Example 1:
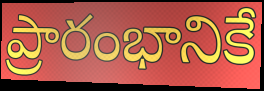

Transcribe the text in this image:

ప్రారంభానికే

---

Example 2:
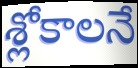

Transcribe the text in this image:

శ్లోకాలనే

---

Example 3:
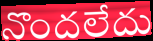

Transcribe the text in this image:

నొందలేదు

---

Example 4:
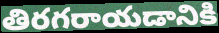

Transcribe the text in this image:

తిరగరాయడానికి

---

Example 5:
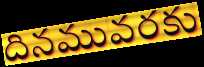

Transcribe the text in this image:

దినమువరకు